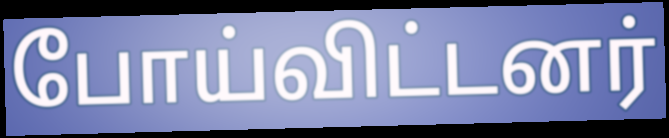
போய்விட்டனர்